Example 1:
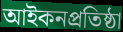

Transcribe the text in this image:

আইকনপ্রতিষ্ঠা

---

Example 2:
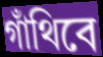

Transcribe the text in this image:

গাঁথিবে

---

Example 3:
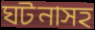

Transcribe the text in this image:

ঘটনাসহ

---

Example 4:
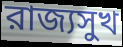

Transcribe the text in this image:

রাজ্যসুখ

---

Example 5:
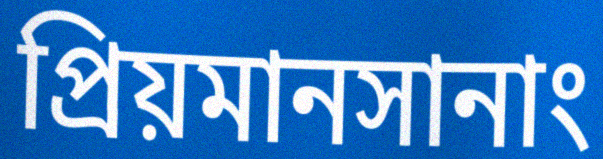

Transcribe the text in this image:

প্রিয়মানসানাং